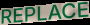
REPLACE